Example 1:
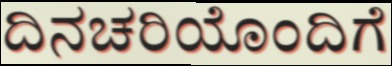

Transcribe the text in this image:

ದಿನಚರಿಯೊಂದಿಗೆ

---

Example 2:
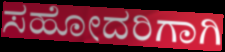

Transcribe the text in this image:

ಸಹೋದರಿಗಾಗಿ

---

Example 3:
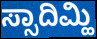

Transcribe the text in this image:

ಸ್ಸಾದಿಮ್ಹಿ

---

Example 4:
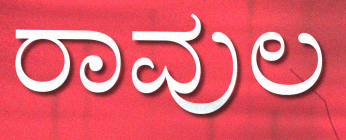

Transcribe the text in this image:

ರಾವುಲ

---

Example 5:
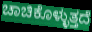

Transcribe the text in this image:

ಚಾಚಿಕೊಳ್ಳುತ್ತದೆ